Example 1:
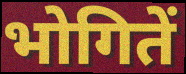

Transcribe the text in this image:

भोगितें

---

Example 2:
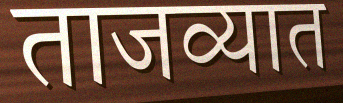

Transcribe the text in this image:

ताजव्यात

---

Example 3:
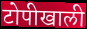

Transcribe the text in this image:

टोपीखाली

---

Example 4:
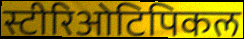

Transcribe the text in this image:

स्टीरिओटिपिकल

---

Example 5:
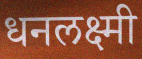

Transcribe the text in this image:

धनलक्ष्मी